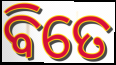
ବିତେ